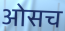
ओसच